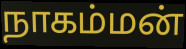
நாகம்மன்